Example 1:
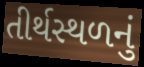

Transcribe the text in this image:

તીર્થસ્થળનું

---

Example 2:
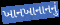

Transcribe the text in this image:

ખાનખાનાનનું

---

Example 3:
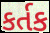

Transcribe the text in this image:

કર્તક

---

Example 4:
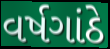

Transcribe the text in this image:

વર્ષગાંઠે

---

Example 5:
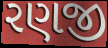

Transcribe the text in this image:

રણજી